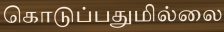
கொடுப்பதுமில்லை